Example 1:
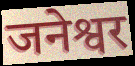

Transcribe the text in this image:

जनेश्वर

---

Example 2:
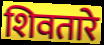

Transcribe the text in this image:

शिवतारे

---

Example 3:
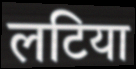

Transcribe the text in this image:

लटिया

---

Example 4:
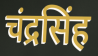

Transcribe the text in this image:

चंद्रसिंह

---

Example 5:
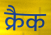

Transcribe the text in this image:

क्रैक